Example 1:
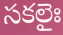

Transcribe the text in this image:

సకలైః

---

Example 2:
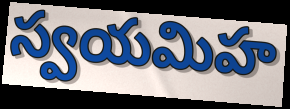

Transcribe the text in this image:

స్వయమిహ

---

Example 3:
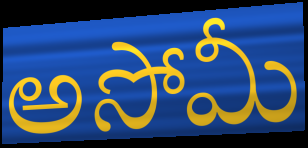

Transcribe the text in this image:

అసోమీ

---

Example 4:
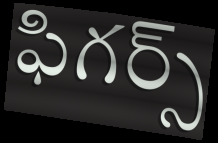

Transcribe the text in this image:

ఫిగర్స్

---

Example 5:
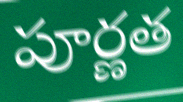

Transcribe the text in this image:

పూర్ణత